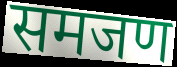
समजण